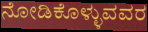
ನೋಡಿಕೊಳ್ಳುವವರ